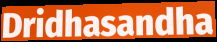
Dridhasandha